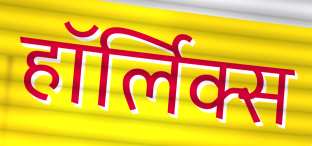
हॉर्लिक्स